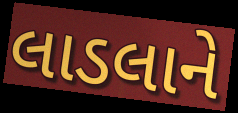
લાડલાને